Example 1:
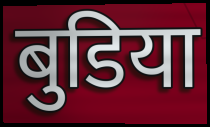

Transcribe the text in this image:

बुडिया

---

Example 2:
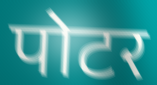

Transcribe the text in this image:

पोटर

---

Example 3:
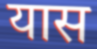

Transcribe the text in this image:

यास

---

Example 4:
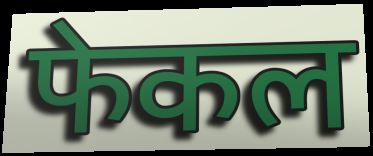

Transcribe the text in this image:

फेकल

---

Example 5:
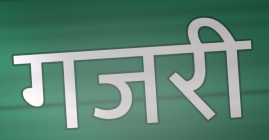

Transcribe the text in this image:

गजरी